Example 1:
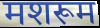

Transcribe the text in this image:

मशरूम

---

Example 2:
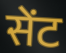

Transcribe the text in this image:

सेंट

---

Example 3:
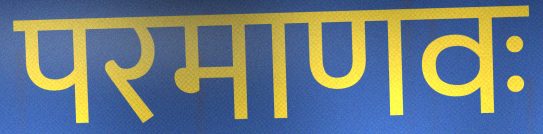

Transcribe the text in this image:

परमाणवः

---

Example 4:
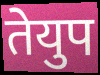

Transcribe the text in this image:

तेयुप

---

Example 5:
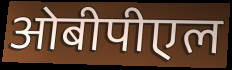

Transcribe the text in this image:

ओबीपीएल